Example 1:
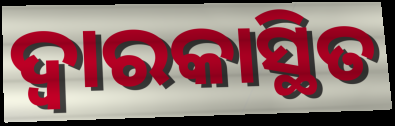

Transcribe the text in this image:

ଦ୍ୱାରକାସ୍ଥିତ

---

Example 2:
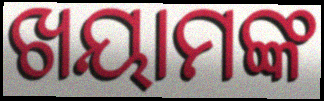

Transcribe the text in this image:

ଖୟାମଙ୍କ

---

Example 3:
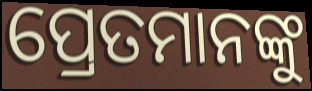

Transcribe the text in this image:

ପ୍ରେତମାନଙ୍କୁ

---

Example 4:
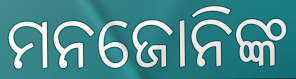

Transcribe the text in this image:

ମନଜୋନିଙ୍କ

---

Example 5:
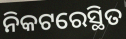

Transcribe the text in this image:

ନିକଟରେସ୍ଥିତ